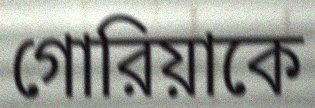
গোরিয়াকে